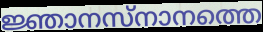
ജ്ഞാനസ്നാനത്തെ